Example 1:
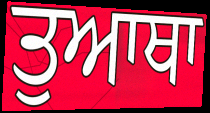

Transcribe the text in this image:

ਤੁਆਥਾ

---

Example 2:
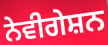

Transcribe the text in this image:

ਨੇਵੀਗੇਸ਼ਨ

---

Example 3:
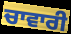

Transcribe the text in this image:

ਚਾਵਾਰੀ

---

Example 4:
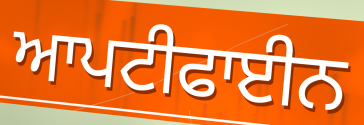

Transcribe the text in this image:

ਆਪਟੀਫਾਈਨ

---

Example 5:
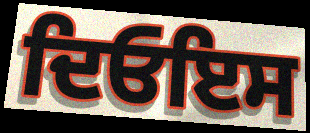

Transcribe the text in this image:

ਦਿਓਇਸ